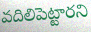
వదిలిపెట్టారని